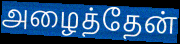
அழைத்தேன்